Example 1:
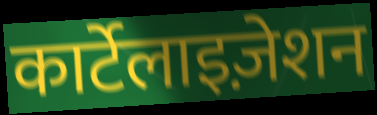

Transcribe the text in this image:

कार्टेलाइज़ेशन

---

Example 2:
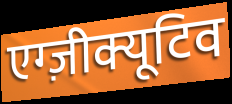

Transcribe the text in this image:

एग्ज़ीक्यूटिव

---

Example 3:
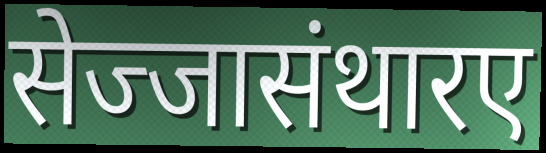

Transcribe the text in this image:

सेज्जासंथारए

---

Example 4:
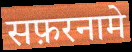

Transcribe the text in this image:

सफ़रनामे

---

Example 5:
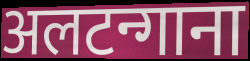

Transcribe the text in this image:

अलटन्गाना